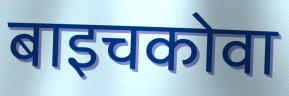
बाइचकोवा